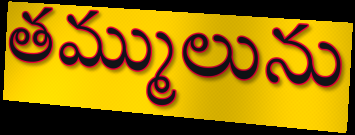
తమ్ములును